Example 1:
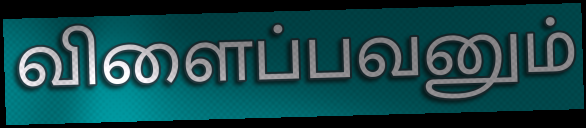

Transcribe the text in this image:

விளைப்பவனும்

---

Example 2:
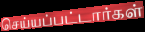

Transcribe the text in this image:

செய்யப்பட்டார்கள்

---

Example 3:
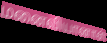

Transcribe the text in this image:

மனைவியானாள்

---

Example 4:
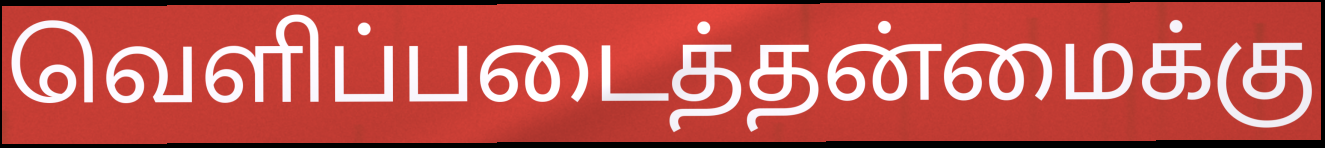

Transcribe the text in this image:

வெளிப்படைத்தன்மைக்கு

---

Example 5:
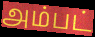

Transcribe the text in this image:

அம்பட்